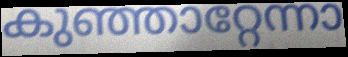
കുഞ്ഞാറ്റേന്നാ